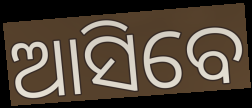
ଆସିବେ